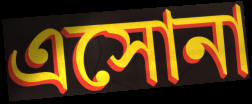
এসোনা